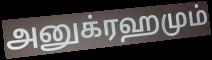
அனுக்ரஹமும்